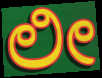
ಲೀ